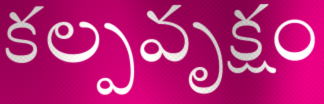
కల్పవృక్షం